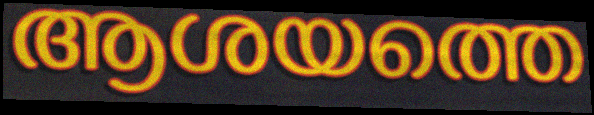
ആശയത്തെ